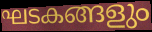
ഘടകങ്ങളും